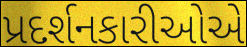
પ્રદર્શનકારીઓએ